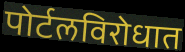
पोर्टलविरोधात